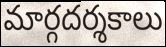
మార్గదర్శకాలు